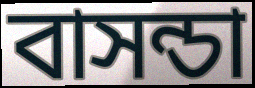
বাসন্ডা